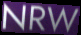
NRW